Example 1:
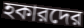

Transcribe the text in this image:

হকারদের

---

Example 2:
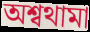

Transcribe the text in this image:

অশ্বথামা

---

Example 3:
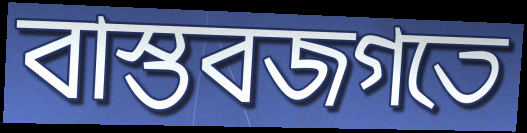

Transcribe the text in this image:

বাস্তবজগতে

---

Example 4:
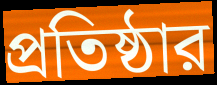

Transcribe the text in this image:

প্রতিষ্ঠার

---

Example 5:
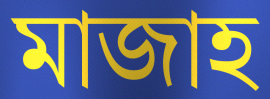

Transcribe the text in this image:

মাজাহ